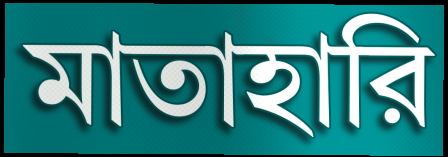
মাতাহারি